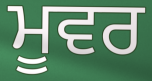
ਮੂਵਰ